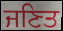
ਜਣਿਤ